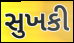
સુખકી